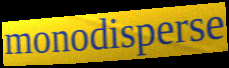
monodisperse